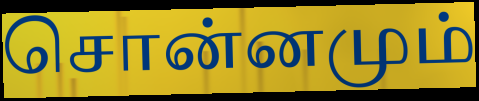
சொன்னமும்